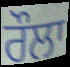
ਰੌਲਾ